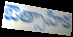
ఔత్సాహిక